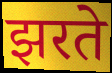
झरते